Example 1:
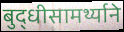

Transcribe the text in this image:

बुद्धीसामर्थ्याने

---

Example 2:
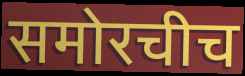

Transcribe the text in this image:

समोरचीच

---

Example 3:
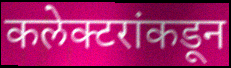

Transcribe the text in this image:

कलेक्टरांकडून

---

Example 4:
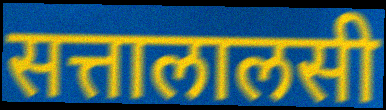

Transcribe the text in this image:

सत्तालालसी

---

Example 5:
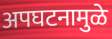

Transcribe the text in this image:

अपघटनामुळे